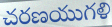
చరణయుగళి